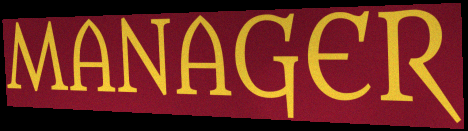
MANAGER